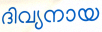
ദിവ്യനായ